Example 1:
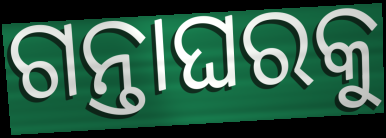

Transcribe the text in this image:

ଗନ୍ତାଘରକୁ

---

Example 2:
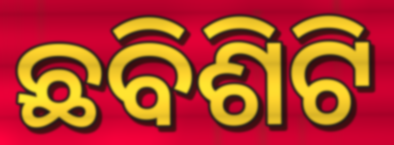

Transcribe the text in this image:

ଛବିଶିଟି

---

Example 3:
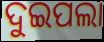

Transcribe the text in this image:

ଦୁଇପଲା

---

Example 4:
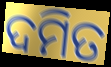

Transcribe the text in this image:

ଦମିତ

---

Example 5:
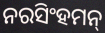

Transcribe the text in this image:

ନରସିଂହମନ୍